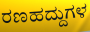
ರಣಹದ್ದುಗಳ